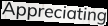
Appreciating